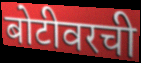
बोटीवरची